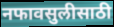
नफावसुलीसाठी